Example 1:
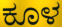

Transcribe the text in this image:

ಕೂಳ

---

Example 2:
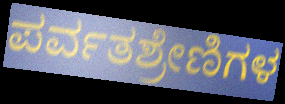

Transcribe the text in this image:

ಪರ್ವತಶ್ರೇಣಿಗಳ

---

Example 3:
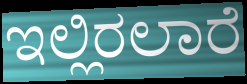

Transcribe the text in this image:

ಇಲ್ಲಿರಲಾರೆ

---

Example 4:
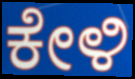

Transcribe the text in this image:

ಕೇಳಿ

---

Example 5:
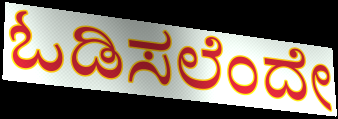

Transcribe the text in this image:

ಓಡಿಸಲೆಂದೇ